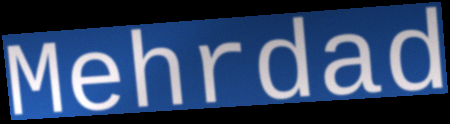
Mehrdad